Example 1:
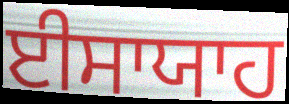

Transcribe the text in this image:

ਈਸਾਯਾਹ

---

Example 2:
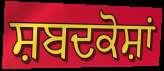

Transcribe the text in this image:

ਸ਼ਬਦਕੋਸ਼ਾਂ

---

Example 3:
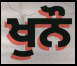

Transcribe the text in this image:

ਖੁਨੌ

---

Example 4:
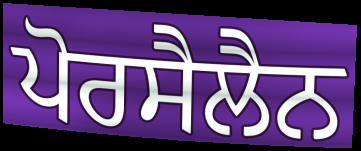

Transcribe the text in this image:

ਪੋਰਸੈਲੈਨ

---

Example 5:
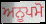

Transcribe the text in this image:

ਅਨੂਪਮੋ